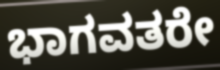
ಭಾಗವತರೇ